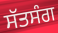
ਸੱਤਸੰਗ